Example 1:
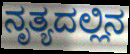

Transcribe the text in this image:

ನೃತ್ಯದಲ್ಲಿನ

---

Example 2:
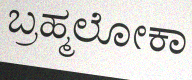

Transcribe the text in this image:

ಬ್ರಹ್ಮಲೋಕಾ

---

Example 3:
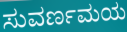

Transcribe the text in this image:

ಸುವರ್ಣಮಯ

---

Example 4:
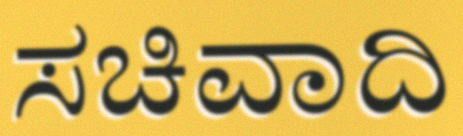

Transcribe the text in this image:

ಸಚಿವಾದಿ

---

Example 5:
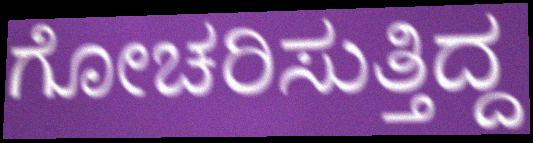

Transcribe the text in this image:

ಗೋಚರಿಸುತ್ತಿದ್ದ